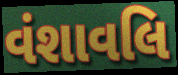
વંશાવલિ